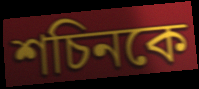
শচিনকে